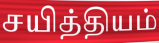
சயித்தியம்